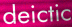
deictic